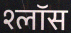
श्लॉस